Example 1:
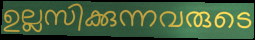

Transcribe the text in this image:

ഉല്ലസിക്കുന്നവരുടെ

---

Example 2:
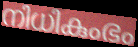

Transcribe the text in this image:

നിധികുംഭം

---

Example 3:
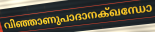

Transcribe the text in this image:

വിഞ്ഞാണുപാദാനക്ഖന്ധോ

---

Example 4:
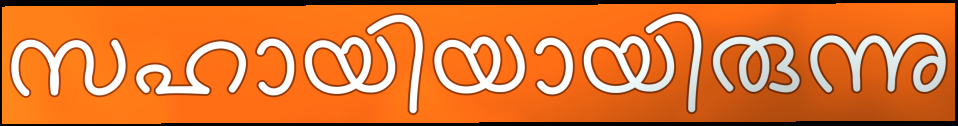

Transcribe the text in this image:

സഹായിയായിരുന്നു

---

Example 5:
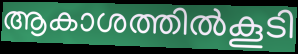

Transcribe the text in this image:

ആകാശത്തിൽകൂടി